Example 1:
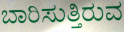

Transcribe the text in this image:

ಬಾರಿಸುತ್ತಿರುವ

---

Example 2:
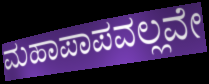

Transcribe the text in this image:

ಮಹಾಪಾಪವಲ್ಲವೇ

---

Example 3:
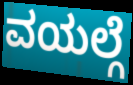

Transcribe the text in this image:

ವಯಲ್ಗೆ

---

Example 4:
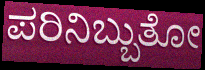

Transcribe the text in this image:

ಪರಿನಿಬ್ಬುತೋ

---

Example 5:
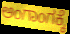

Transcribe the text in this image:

ಅಂಗಾಂಗಕ್ಕೆ